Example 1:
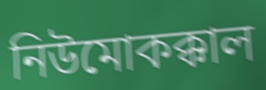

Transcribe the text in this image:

নিউমোকক্কাল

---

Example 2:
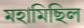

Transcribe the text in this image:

মহামিছিল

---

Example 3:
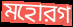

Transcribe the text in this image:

মহোরগ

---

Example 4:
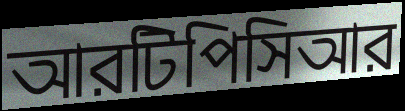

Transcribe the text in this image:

আরটিপিসিআর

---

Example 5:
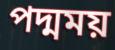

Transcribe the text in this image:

পদ্মময়